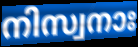
നിസ്വനാഃ